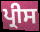
ਪ੍ਰੀਸ